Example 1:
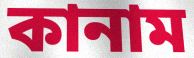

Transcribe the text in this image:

কানাম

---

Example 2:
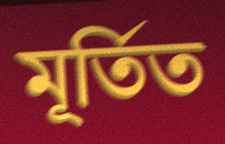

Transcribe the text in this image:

মূৰ্তিত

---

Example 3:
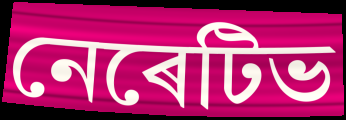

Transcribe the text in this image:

নেৰেটিভ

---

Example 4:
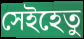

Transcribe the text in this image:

সেইহেতু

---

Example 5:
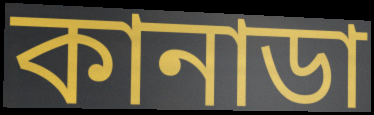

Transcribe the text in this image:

কানাডা